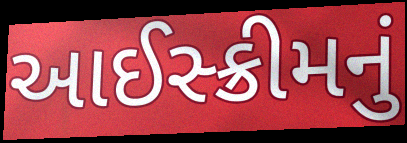
આઈસ્ક્રીમનું